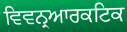
ਵਿਵਨ੍ਰਆਰਕਟਿਕ